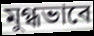
মুগ্ধভাবে